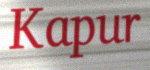
Kapur